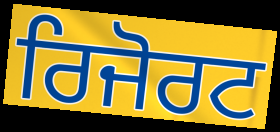
ਰਿਜੋਰਟ